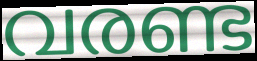
വരണ്ട